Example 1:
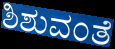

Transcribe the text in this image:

ಶಿಶುವಂತೆ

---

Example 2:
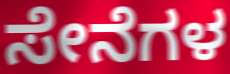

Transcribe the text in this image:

ಸೇನೆಗಳ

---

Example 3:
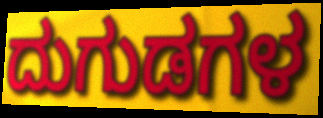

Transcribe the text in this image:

ದುಗುಡಗಳ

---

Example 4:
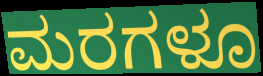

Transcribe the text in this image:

ಮರಗಳೂ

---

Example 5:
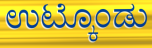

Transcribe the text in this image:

ಉಟ್ಕೊಂಡು